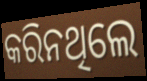
କରିନଥିଲେ